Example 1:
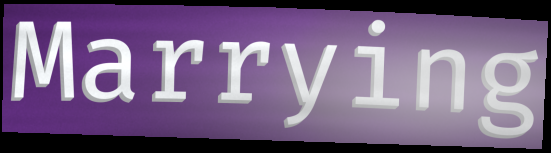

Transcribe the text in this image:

Marrying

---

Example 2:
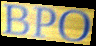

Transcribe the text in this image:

BPO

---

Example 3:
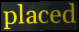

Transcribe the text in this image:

placed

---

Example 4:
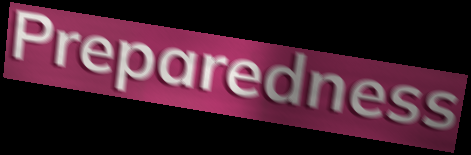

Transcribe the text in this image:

Preparedness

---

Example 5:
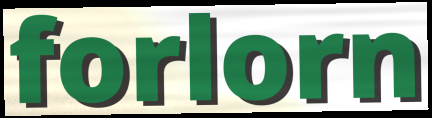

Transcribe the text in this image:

forlorn